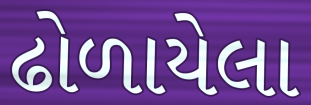
ઢોળાયેલા